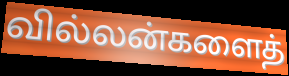
வில்லன்களைத்